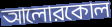
আলোরকোল